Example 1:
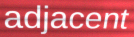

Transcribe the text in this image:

adjacent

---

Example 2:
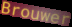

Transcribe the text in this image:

Brouwer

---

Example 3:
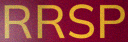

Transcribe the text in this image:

RRSP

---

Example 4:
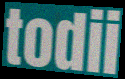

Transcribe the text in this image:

todii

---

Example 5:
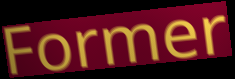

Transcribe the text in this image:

Former